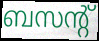
ബസന്റ്